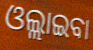
ଓଲ୍ଲାଇବା